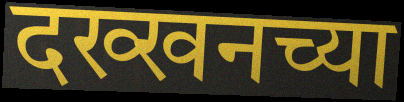
दख्खनच्या